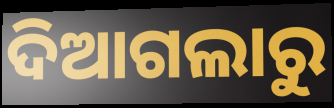
ଦିଆଗଲାରୁ